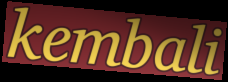
kembali